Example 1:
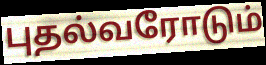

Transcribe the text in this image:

புதல்வரோடும்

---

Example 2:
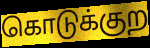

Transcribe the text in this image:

கொடுக்குற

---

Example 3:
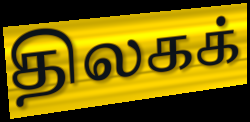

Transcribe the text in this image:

திலகக்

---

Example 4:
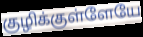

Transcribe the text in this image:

குழிக்குள்ளேயே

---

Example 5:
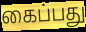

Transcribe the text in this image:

கைப்பது